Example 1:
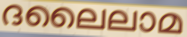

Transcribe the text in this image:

ദലൈലാമ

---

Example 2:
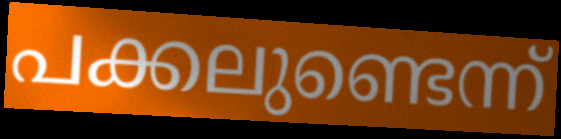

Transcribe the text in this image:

പക്കലുണ്ടെന്ന്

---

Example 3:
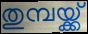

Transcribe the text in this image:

തുമ്പയ്ക്ക്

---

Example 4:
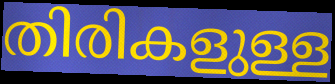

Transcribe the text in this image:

തിരികളുള്ള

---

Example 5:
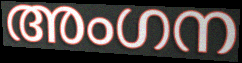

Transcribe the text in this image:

അംഗന